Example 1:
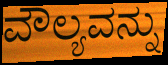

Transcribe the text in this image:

ವೌಲ್ಯವನ್ನು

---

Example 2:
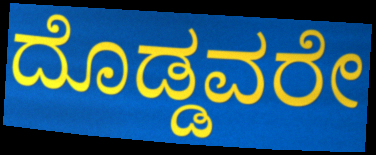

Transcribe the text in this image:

ದೊಡ್ಡವರೇ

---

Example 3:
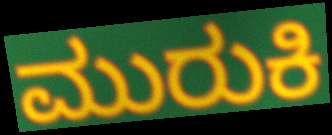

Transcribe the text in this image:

ಮುರುಕಿ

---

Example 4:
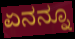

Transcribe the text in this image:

ಏನನ್ನೂ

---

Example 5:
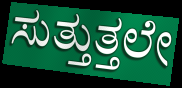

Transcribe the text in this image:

ಸುತ್ತುತ್ತಲೇ